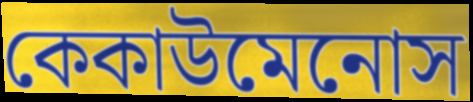
কেকাউমেনোস